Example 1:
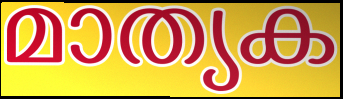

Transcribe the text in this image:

മാത്യക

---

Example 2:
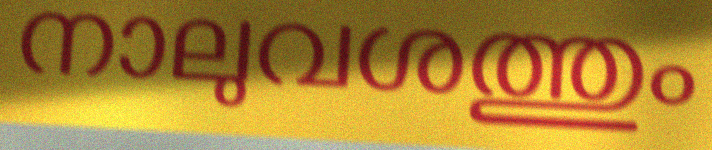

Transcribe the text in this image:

നാലുവശത്തും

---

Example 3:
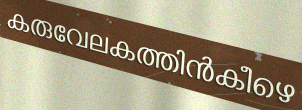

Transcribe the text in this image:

കരുവേലകത്തിൻകീഴെ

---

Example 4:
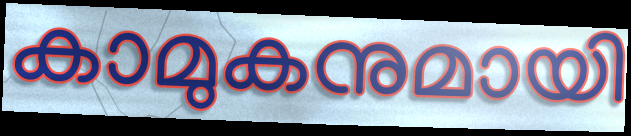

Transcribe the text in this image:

കാമുകനുമായി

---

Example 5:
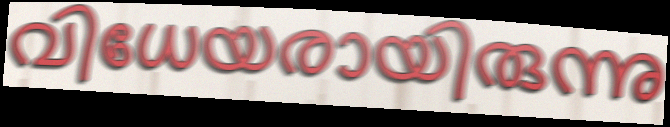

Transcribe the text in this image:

വിധേയരായിരുന്നു